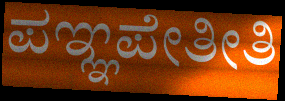
ಪಞ್ಞಪೇತೀತಿ